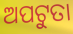
ଅପଟୁତା